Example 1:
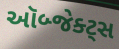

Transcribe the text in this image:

ઑબ્જેક્ટ્સ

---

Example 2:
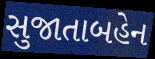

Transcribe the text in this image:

સુજાતાબહેન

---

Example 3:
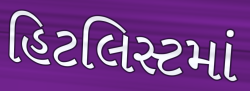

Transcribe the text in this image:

હિટલિસ્ટમાં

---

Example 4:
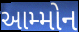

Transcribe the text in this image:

આમ્મોન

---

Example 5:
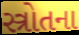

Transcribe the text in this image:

સ્ત્રોતના